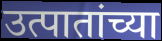
उत्पातांच्या